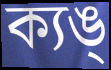
ক্যঙ্